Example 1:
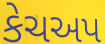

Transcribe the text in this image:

કેચઅપ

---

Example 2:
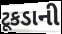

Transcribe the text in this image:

ટૂકડાની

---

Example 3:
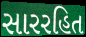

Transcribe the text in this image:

સારરહિત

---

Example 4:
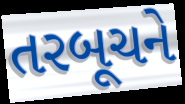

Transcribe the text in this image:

તરબૂચને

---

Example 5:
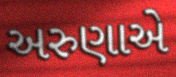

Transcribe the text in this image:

અરુણાએ